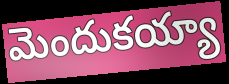
మెందుకయ్యా